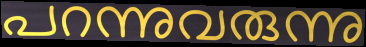
പറന്നുവരുന്നു